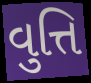
વુત્તિ